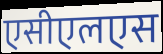
एसीएलएस